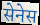
सेनेस